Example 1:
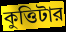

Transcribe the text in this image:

কুত্তিটার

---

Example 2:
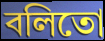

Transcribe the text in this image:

বলিতো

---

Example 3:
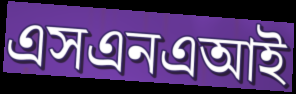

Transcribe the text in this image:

এসএনএআই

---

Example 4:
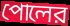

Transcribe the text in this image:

পোলের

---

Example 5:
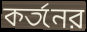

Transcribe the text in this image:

কর্তনের